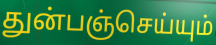
துன்பஞ்செய்யும்